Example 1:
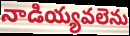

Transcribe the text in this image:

నాడియ్యవలెను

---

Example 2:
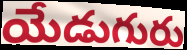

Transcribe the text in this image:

యేడుగురు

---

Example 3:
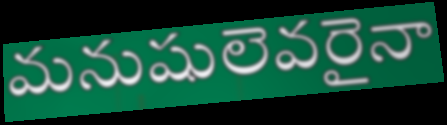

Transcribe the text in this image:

మనుషులెవరైనా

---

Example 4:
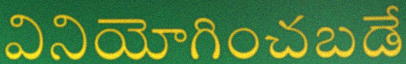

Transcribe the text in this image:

వినియోగించబడే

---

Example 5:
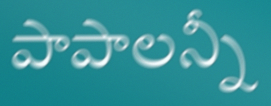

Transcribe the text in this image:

పాపాలన్నీ